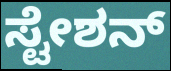
ಸ್ಟೇಶನ್